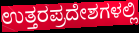
ಉತ್ತರಪ್ರದೇಶಗಳಲ್ಲಿ